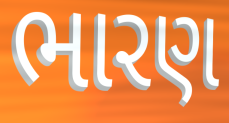
ભારણ